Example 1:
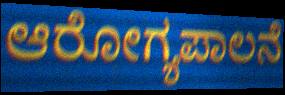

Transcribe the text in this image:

ಆರೋಗ್ಯಪಾಲನೆ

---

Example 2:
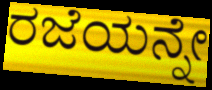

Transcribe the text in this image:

ರಜೆಯನ್ನೇ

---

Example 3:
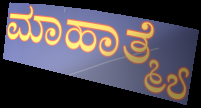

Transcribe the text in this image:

ಮಾಹಾತ್ಮ್ಯೆ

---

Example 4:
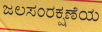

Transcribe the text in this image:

ಜಲಸಂರಕ್ಷಣೆಯ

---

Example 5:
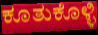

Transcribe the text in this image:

ಕೂತುಕೊಳ್ಳಿ